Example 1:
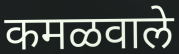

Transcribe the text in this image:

कमळवाले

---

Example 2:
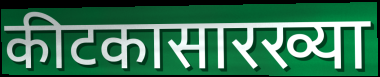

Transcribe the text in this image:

कीटकासारख्या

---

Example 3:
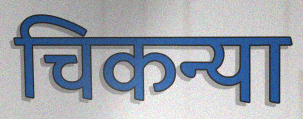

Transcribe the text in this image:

चिकन्या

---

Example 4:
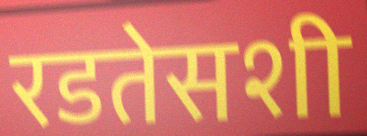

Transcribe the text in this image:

रडतेसशी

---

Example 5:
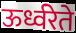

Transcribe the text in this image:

ऊर्ध्वरेते